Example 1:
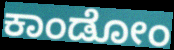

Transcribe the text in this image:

ಕಾಂಡೋಂ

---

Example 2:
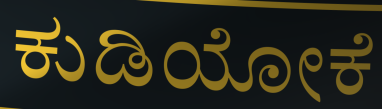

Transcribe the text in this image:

ಕುಡಿಯೋಕೆ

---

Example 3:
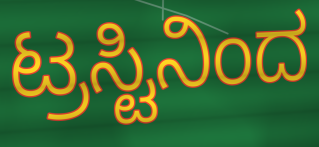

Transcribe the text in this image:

ಟ್ರಸ್ಟಿನಿಂದ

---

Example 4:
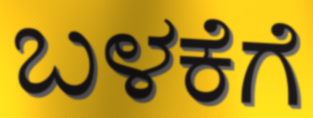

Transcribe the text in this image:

ಬಳಕೆಗೆ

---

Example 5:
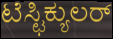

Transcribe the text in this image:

ಟೆಸ್ಟಿಕ್ಯುಲರ್